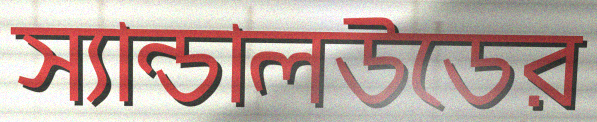
স্যান্ডালউডের